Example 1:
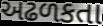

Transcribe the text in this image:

અઢળકતા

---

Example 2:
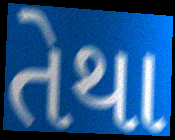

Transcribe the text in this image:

તેથા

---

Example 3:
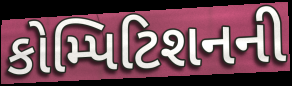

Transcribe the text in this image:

કોમ્પિટિશનની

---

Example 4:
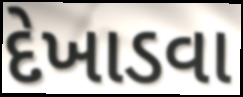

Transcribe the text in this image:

દેખાડવા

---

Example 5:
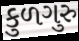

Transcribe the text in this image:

કુળગુરુ